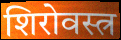
शिरोवस्त्र